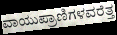
ವಾಯುಪ್ರಾಣಿಗಳವರೆತ್ತ